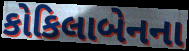
કોકિલાબેનના